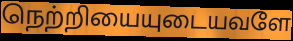
நெற்றியையுடையவளே